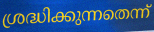
ശ്രദ്ധിക്കുന്നതെന്ന്